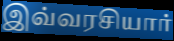
இவ்வரசியார்